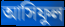
আসিফুল